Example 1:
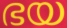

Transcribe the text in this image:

ഭയ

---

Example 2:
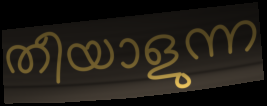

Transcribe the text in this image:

തീയാളുന്ന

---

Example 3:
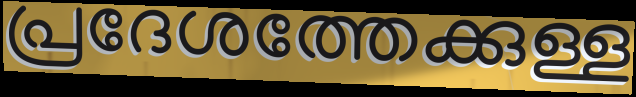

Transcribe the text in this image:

പ്രദേശത്തേക്കുള്ള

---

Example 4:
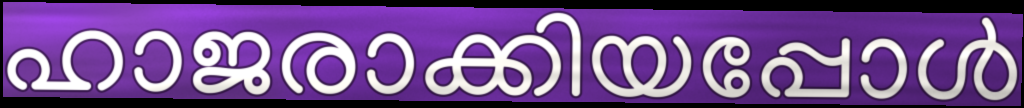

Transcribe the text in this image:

ഹാജരാക്കിയപ്പോൾ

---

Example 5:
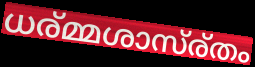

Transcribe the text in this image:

ധര്മ്മശാസ്ര്തം